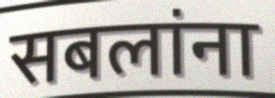
सबलांना